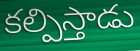
కల్పిస్తాడు